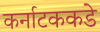
कर्नाटककडे